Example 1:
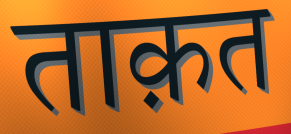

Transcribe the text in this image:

ताक़त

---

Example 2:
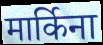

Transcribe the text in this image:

मार्किना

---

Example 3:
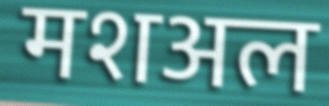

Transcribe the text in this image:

मशअल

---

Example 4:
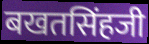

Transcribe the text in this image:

बखतसिंहजी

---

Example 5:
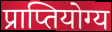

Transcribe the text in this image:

प्राप्तियोग्य